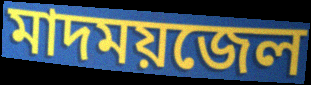
মাদময়জেল